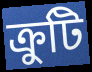
ক্রুটি